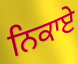
ਨਿਕਾਏ